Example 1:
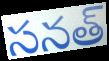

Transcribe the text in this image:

సనత్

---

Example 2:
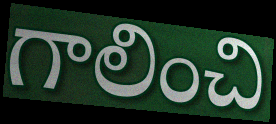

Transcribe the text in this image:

గాలించి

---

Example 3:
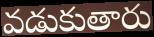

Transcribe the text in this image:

వడుకుతారు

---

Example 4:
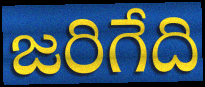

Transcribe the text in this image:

జరిగేది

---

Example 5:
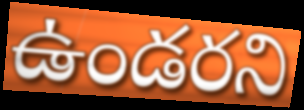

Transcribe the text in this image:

ఉండరని